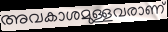
അവകാശമുള്ളവരാണ്